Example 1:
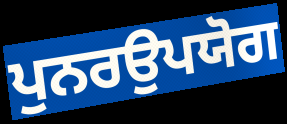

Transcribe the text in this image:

ਪੁਨਰਉਪਯੋਗ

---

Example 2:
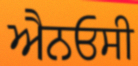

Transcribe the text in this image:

ਐਨਓਸੀ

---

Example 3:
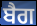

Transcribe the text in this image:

ਬੈਗ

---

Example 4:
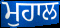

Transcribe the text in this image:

ਮੁਹਾਲ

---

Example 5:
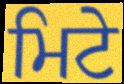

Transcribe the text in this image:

ਮਿਟੇ